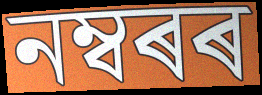
নম্বৰৰ